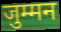
जुम्मन